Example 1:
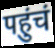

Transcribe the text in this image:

पहुंचं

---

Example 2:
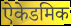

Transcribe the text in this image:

ऐकेडमिक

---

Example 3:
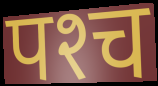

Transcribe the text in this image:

पश्च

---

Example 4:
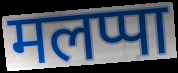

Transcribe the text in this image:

मलप्पा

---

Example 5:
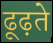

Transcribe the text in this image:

ढूढ़ते